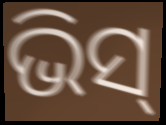
ଭିସ୍